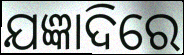
ଯଜ୍ଞାଦିରେ